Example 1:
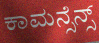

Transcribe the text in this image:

ಕಾಮನ್ಸೆನ್ಸ್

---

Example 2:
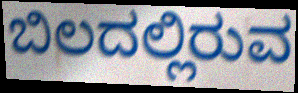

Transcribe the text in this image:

ಬಿಲದಲ್ಲಿರುವ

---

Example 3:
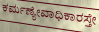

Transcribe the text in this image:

ಕರ್ಮಣ್ಯೇವಾಧಿಕಾರಸ್ತೇ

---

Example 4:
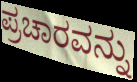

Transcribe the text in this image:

ಪ್ರಚಾರವನ್ನು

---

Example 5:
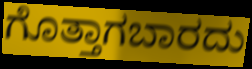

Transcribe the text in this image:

ಗೊತ್ತಾಗಬಾರದು